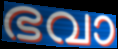
ഭവാ